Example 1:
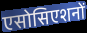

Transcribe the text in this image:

एसोसिएशनों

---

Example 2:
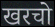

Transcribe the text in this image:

खरचो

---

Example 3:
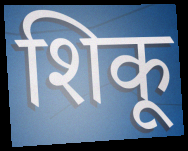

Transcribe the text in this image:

शिकू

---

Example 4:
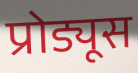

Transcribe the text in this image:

प्रोड्यूस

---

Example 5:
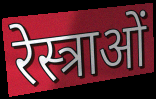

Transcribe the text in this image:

रेस्त्राओं